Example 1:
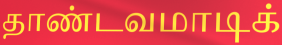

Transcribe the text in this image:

தாண்டவமாடிக்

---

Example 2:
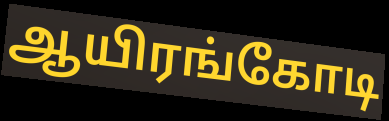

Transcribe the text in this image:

ஆயிரங்கோடி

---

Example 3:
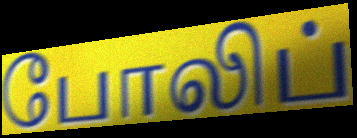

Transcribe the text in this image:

போலிப்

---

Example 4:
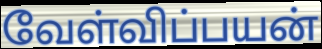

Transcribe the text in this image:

வேள்விப்பயன்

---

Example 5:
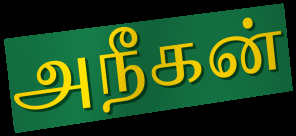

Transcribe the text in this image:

அநீகன்